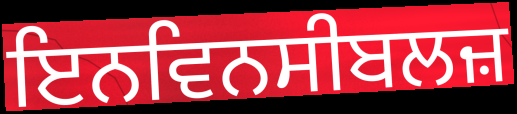
ਇਨਵਿਨਸੀਬਲਜ਼